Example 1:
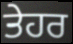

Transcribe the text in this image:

ਤੇਹਰ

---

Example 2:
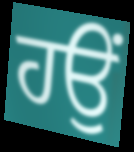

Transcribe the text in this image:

ਹਉਂ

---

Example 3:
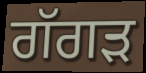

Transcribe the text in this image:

ਗੱਗੜ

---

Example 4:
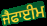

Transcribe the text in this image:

ਜੈਫਾਈਮ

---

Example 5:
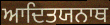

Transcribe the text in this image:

ਆਦਿਤਯਨਾਥ